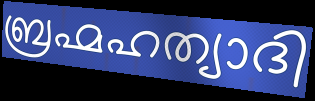
ബ്രഹ്മഹത്യാദി